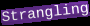
Strangling